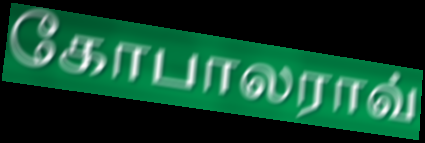
கோபாலராவ்